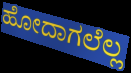
ಹೋದಾಗಲೆಲ್ಲ